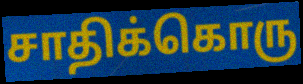
சாதிக்கொரு